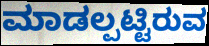
ಮಾಡಲ್ಪಟ್ಟಿರುವ